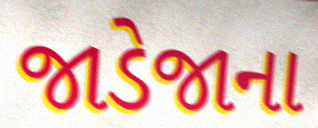
જાડેજાના